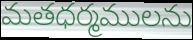
మతధర్మములను